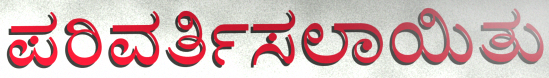
ಪರಿವರ್ತಿಸಲಾಯಿತು